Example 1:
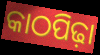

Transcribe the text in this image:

କାଠପିଢ଼ା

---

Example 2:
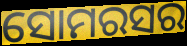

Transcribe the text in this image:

ସୋମରସର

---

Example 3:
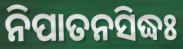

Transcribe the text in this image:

ନିପାତନସିଦ୍ଧଃ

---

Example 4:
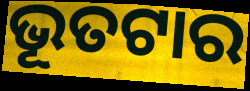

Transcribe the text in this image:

ଭୂତଟାର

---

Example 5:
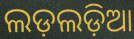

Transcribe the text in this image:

ଲଡ଼ଲଡ଼ିଆ